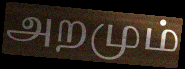
அறமும்